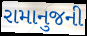
રામાનુજની